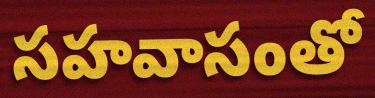
సహవాసంతో